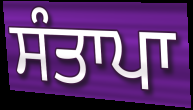
ਸੰਤਾਪਾ